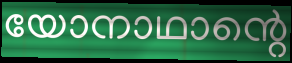
യോനാഥാന്റെ